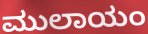
ಮುಲಾಯಂ